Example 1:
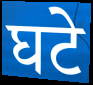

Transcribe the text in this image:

घटे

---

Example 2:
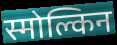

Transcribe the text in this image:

स्मोल्किन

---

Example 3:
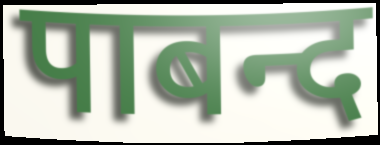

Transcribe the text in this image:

पाबन्द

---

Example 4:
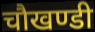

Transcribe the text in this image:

चौखण्डी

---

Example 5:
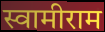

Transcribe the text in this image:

स्वामीराम